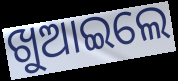
ଖୁଆଇଲେ